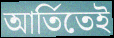
আর্তিতেই